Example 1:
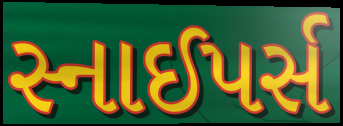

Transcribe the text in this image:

સ્નાઈપર્સ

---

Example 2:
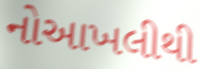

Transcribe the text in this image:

નોઆખલીથી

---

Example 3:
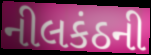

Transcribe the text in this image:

નીલકંઠની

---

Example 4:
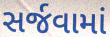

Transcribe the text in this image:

સર્જવામાં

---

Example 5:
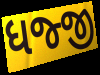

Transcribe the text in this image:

ધજ્જી